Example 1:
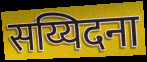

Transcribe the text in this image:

सय्यिदना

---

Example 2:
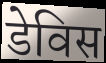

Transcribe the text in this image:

डेविस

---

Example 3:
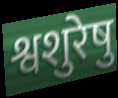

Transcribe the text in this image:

श्वशुरेषु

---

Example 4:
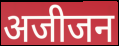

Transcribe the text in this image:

अजीजन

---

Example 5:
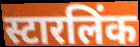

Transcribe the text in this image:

स्टारलिंक